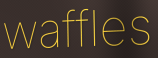
waffles